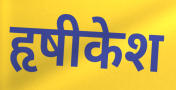
हृषीकेश